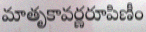
మాతృకావర్ణరూపిణీం